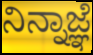
ನಿನ್ನಾಜ್ಞೆ